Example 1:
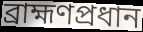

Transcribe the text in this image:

ব্রাহ্মণপ্রধান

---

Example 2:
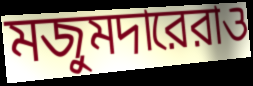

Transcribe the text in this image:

মজুমদারেরাও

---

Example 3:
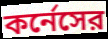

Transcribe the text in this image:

কর্নেসের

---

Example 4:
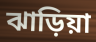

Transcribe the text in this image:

ঝাড়িয়া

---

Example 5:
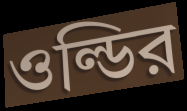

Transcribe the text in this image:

ওল্ডির